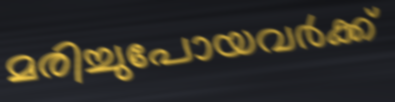
മരിച്ചുപോയവർക്ക്